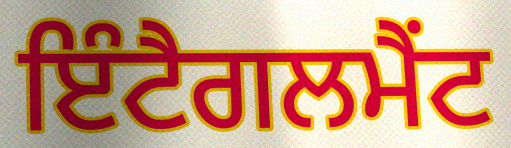
ਇੰਟੈਗਲਮੈਂਟ